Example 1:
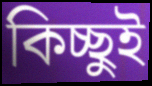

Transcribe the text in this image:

কিচ্ছুই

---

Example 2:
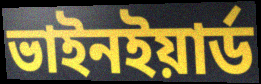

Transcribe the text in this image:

ভাইনইয়ার্ড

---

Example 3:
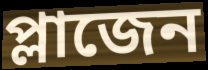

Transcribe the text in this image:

প্লাজেন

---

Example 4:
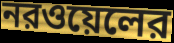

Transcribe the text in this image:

নরওয়েলের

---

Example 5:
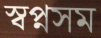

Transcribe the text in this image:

স্বপ্নসম